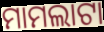
ମାମଲାଟା